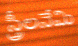
స్త్రీలనేమి